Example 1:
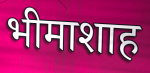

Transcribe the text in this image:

भीमाशाह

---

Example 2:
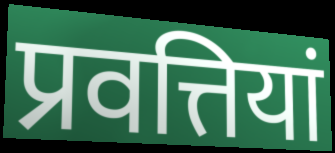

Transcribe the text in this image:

प्रवत्तियां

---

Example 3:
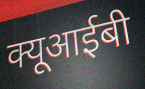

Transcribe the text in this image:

क्यूआईबी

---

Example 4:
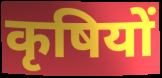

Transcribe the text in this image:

कृषियों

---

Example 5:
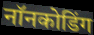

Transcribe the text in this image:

नॉनकोडिंग